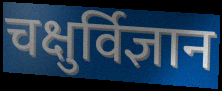
चक्षुर्विज्ञान